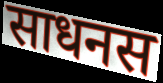
साधनस